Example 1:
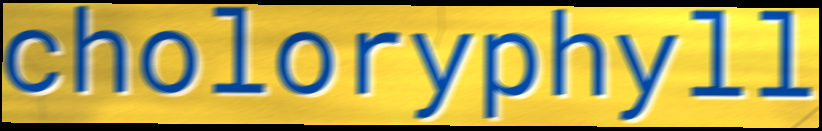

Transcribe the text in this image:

choloryphyll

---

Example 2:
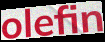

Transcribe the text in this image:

olefin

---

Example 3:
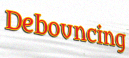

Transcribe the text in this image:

Debouncing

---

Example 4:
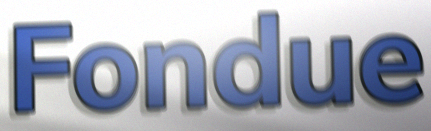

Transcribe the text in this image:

Fondue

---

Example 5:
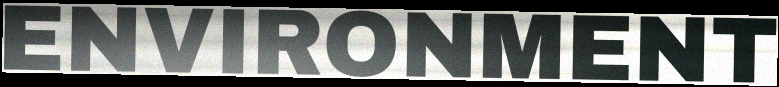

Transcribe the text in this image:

ENVIRONMENT